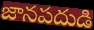
జానపదుడి